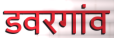
डवरगांव